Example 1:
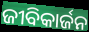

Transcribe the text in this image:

ଜୀବିକାର୍ଜନ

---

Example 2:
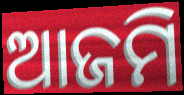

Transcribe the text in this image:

ଆଜମି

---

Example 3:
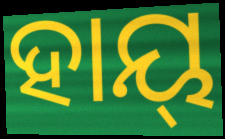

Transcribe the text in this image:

ହାୟ୍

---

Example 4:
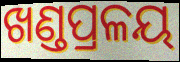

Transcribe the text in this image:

ଖଣ୍ଡପ୍ରଳୟ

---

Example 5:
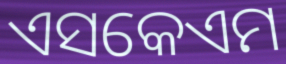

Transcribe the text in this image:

ଏସକେଏମ